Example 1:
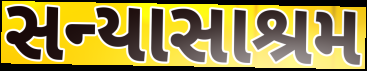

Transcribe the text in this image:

સન્યાસાશ્રમ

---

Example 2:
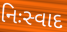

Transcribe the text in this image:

નિઃસ્વાદ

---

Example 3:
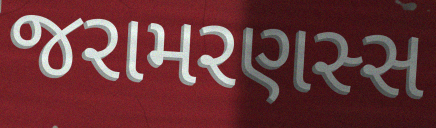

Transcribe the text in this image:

જરામરણસ્સ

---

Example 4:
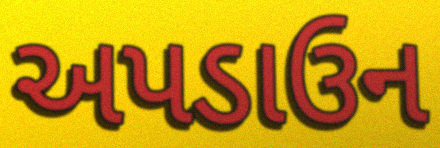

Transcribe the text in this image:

અપડાઉન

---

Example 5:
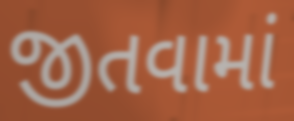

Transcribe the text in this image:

જીતવામાં